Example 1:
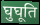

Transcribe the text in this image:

घुघूति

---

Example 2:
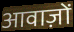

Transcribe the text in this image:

आवाज़ों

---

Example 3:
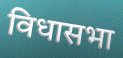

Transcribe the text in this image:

विधासभा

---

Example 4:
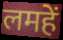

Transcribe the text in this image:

लमहें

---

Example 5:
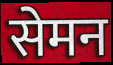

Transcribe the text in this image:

सेमन